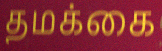
தமக்கை